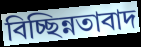
বিচ্ছিন্নতাবাদ